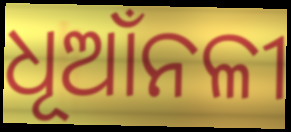
ଧୂଆଁନଳୀ